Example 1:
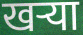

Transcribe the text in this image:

खऱ्या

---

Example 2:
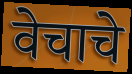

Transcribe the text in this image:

वेचाचे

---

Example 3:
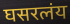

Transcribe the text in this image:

घसरलंय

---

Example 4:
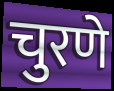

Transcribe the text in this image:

चुरणे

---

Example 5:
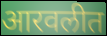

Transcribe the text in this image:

आरवलीत